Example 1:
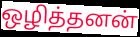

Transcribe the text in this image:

ஒழித்தனன்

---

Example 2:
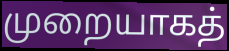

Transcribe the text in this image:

முறையாகத்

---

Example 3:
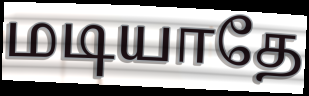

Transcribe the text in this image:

மடியாதே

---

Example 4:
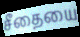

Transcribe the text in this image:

சீதையை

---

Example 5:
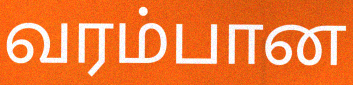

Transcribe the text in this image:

வரம்பான